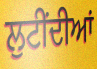
ਲੁਟੀਂਦੀਆਂ